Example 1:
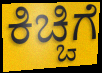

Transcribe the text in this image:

ಕಿಚ್ಚಿಗೆ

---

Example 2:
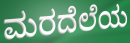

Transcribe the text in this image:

ಮರದೆಲೆಯ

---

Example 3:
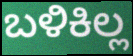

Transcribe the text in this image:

ಬಳಿಕಿಲ್ಲ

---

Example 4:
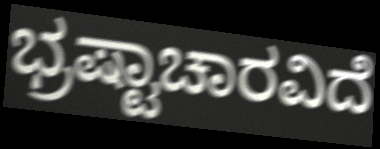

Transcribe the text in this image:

ಭ್ರಷ್ಟಾಚಾರವಿದೆ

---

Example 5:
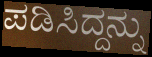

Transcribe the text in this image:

ಪಡಿಸಿದ್ದನ್ನು